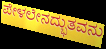
ಪೇಳಲೇನದ್ಭುತವನು